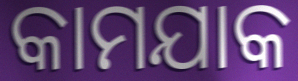
କାମଯାକ